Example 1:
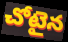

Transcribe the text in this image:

చోటైన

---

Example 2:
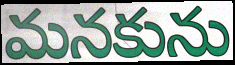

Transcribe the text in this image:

మనకును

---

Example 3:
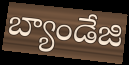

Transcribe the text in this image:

బ్యాండేజి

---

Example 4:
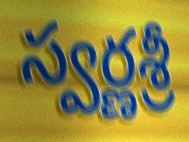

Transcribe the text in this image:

స్వర్ణశ్రీ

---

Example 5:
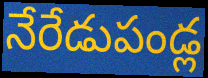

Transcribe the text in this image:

నేరేడుపండ్ల